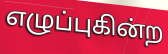
எழுப்புகின்ற